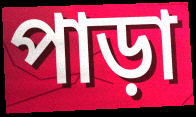
পাড়া